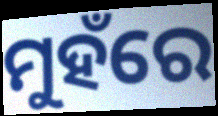
ମୁହଁରେ